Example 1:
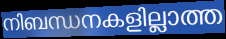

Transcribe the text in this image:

നിബന്ധനകളില്ലാത്ത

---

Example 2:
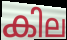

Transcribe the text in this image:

കില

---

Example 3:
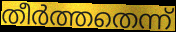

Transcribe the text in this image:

തീർത്തതെന്ന്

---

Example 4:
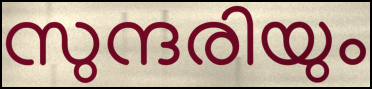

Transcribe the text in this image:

സുന്ദരിയും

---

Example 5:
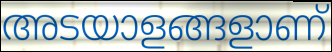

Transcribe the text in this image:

അടയാളങ്ങളാണ്